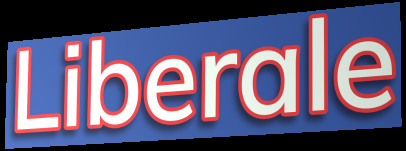
Liberale